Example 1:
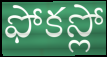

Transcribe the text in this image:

ఫోకస్లో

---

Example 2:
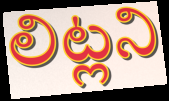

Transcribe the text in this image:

లిట్లని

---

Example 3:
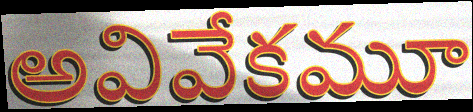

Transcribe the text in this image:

అవివేకమూ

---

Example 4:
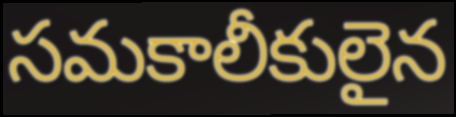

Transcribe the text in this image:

సమకాలీకులైన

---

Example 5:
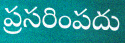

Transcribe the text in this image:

ప్రసరింపదు